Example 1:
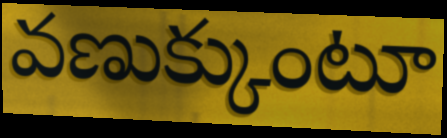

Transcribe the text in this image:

వణుక్కుంటూ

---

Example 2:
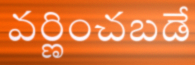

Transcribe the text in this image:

వర్ణించబడే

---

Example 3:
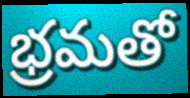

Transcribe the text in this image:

భ్రమతో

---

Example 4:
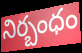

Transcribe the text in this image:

నిర్బంధం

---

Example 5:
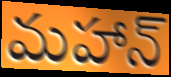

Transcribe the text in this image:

మహాన్